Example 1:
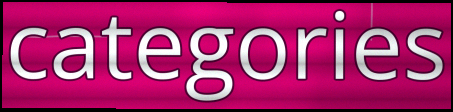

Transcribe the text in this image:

categories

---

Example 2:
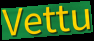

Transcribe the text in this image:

Vettu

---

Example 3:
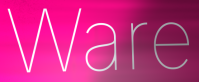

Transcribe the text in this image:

Ware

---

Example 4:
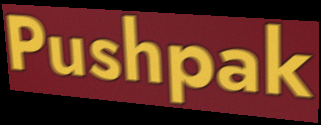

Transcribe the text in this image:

Pushpak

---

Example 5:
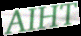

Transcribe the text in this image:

AIHT